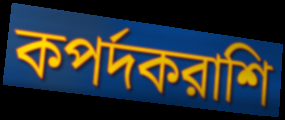
কপর্দকরাশি